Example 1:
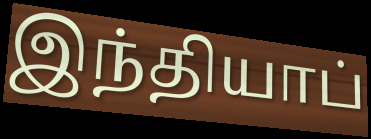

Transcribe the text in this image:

இந்தியாப்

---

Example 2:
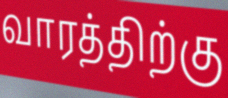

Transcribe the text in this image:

வாரத்திற்கு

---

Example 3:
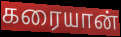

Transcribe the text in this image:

கரையான்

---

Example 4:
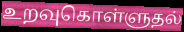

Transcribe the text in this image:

உறவுகொள்ளுதல்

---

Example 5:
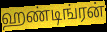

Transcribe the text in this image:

ஹண்டிங்ரன்